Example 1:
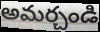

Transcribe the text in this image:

అమర్చండి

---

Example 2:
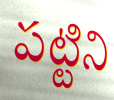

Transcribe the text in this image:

పట్టిని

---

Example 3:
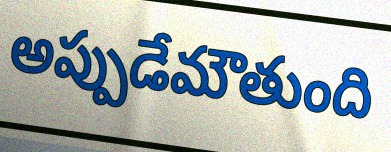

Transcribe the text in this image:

అప్పుడేమౌతుంది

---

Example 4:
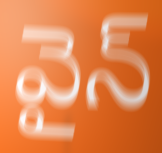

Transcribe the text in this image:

వైన్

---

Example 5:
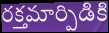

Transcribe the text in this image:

రక్తమార్పిడికి